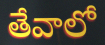
తేవాలో